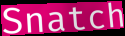
Snatch